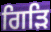
ਗਿੜਿ